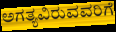
ಅಗತ್ಯವಿರುವವರಿಗೆ